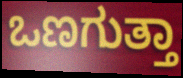
ಒಣಗುತ್ತಾ